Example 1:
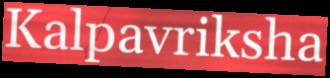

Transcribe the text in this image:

Kalpavriksha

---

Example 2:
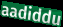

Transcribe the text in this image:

aadiddu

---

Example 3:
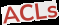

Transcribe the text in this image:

ACLs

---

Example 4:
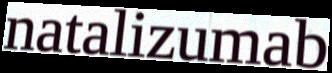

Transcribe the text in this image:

natalizumab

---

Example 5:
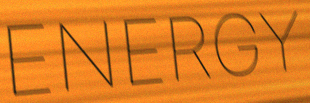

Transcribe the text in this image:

ENERGY